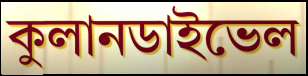
কুলানডাইভেল